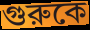
গুরুকে